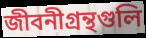
জীবনীগ্রন্থগুলি